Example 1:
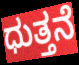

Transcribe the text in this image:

ಧುತ್ತನೆ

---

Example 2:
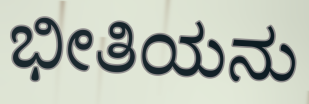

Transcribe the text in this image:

ಭೀತಿಯನು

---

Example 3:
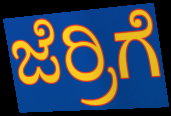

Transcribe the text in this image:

ಜೆರ್ರಿಗೆ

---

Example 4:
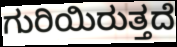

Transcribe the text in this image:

ಗುರಿಯಿರುತ್ತದೆ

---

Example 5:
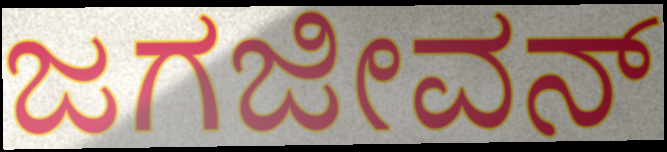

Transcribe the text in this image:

ಜಗಜೀವನ್